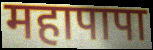
महापापा